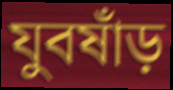
যুবষাঁড়